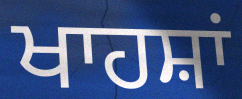
ਖਾਹਸ਼ਾਂ